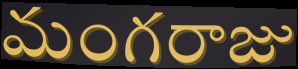
మంగరాజు